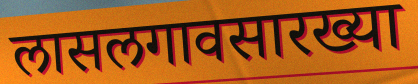
लासलगावसारख्या